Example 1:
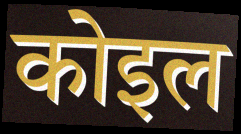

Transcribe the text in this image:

कोइल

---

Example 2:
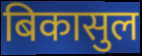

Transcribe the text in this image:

बिकासुल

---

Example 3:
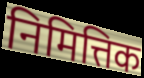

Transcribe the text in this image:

निमित्तिक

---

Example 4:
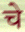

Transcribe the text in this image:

चे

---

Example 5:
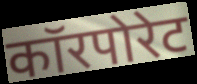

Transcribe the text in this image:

कॉरपोरेट